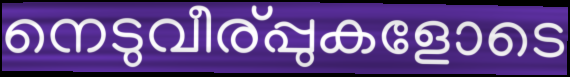
നെടുവീര്പ്പുകളോടെ